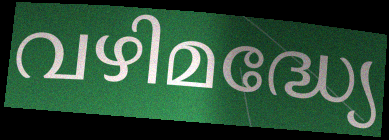
വഴിമദ്ധ്യേ